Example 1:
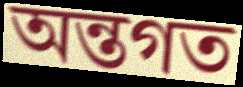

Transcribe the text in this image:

অন্তগত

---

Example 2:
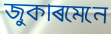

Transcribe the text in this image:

জুকাৰমেনে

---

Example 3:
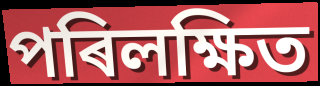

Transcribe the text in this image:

পৰিলক্ষিত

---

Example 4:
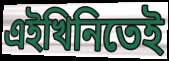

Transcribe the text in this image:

এইখিনিতেই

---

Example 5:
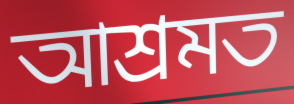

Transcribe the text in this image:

আশ্ৰমত